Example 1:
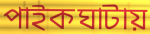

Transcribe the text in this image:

পাইকঘাটায়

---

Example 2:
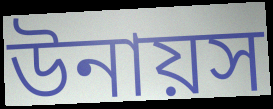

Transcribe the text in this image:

উনায়স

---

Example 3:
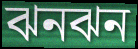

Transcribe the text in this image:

ঝনঝন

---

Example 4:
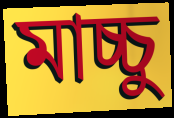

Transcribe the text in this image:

মাচ্চু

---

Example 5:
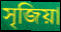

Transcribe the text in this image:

সৃজিয়া